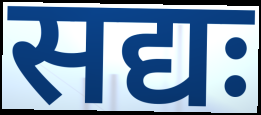
सद्यः